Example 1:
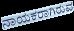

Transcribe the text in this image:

ನಾಯಕರಾಗಿರುವ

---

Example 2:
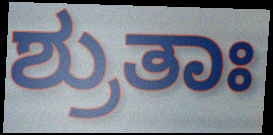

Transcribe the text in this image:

ಶ್ರುತಾಃ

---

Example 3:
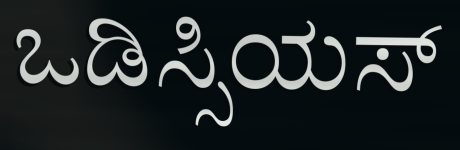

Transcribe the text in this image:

ಒಡಿಸ್ಸಿಯಸ್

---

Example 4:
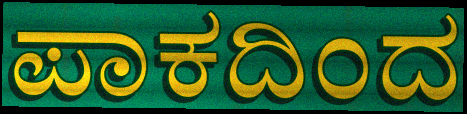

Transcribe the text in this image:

ಪಾಕದಿಂದ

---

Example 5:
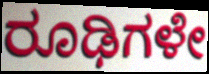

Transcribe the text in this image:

ರೂಢಿಗಳೇ